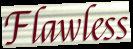
Flawless